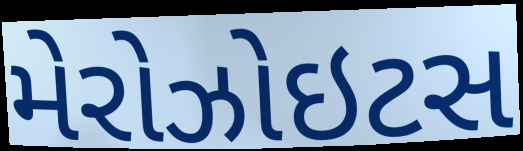
મેરોઝોઇટસ